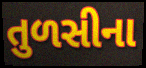
તુળસીના